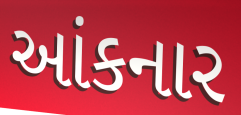
આંકનાર